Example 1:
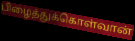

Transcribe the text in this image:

பிழைத்துக்கொள்வான்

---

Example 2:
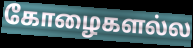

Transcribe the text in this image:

கோழைகளல்ல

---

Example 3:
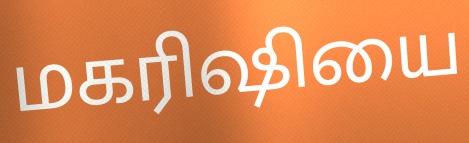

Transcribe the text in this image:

மகரிஷியை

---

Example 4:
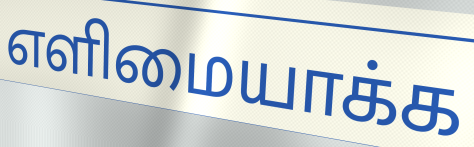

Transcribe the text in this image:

எளிமையாக்க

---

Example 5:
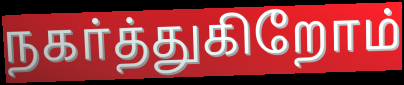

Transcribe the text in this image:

நகர்த்துகிறோம்